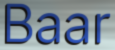
Baar